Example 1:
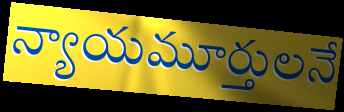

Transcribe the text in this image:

న్యాయమూర్తులనే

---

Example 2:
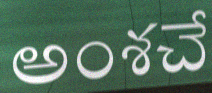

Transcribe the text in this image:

అంశచే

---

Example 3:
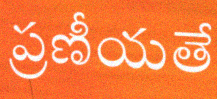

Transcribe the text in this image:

ప్రణీయతే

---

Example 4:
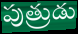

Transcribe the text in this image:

పుత్రుడు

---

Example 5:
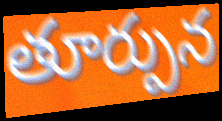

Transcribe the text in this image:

తూర్పున